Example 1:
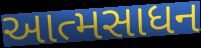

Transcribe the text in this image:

આત્મસાધન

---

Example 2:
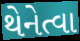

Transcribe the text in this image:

થેનેત્વા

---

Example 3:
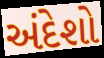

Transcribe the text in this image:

અંદેશો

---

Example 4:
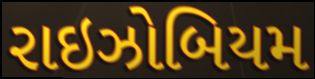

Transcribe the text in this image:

રાઇઝોબિયમ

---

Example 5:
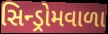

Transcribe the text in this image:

સિન્ડ્રોમવાળા